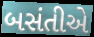
બસંતીએ